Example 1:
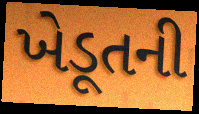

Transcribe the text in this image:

ખેડૂતની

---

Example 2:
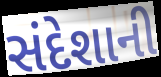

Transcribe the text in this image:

સંદેશાની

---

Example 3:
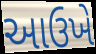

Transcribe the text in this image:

આઉખે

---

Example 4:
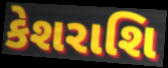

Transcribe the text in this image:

કેશરાશિ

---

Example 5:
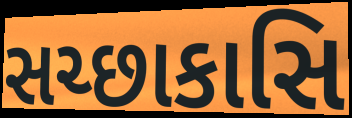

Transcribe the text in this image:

સચ્છાકાસિ